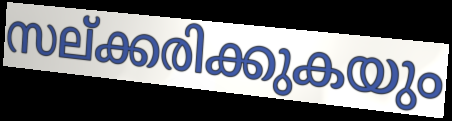
സല്ക്കരിക്കുകയും